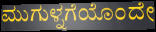
ಮುಗುಳ್ನಗೆಯೊಂದೇ